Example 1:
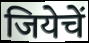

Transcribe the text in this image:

जियेचें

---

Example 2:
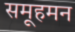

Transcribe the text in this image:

समूहमन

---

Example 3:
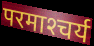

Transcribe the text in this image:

परमाश्चर्य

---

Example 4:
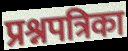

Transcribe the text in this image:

प्रश्नपत्रिका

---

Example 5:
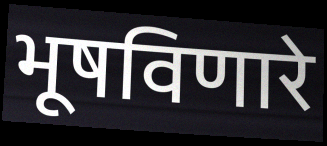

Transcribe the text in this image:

भूषविणारे